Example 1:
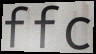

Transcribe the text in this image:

ffc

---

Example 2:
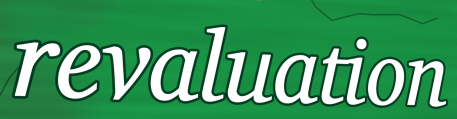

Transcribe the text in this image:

revaluation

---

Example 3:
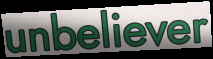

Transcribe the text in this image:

unbeliever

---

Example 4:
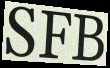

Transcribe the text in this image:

SFB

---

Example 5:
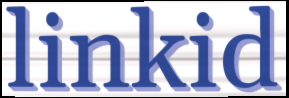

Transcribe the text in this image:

linkid